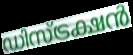
ഡിസ്ട്രക്ഷൻ